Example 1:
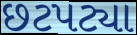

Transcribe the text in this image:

છટપટ્યા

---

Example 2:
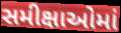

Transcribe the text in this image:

સમીક્ષાઓમાં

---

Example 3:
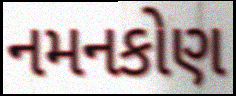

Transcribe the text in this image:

નમનકોણ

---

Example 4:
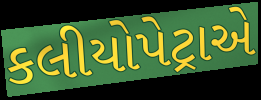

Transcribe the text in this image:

કલીયોપેટ્રાએ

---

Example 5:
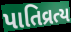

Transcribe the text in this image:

પાતિવ્રત્ય